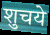
शुचये